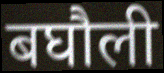
बघौली